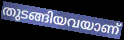
തുടങ്ങിയവയാണ്